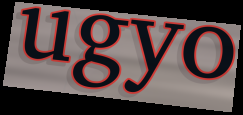
ugyo